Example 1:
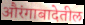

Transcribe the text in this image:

औरंगाबादेतील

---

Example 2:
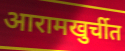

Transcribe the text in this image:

आरामखुर्चीत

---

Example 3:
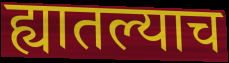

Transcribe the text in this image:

ह्यातल्याच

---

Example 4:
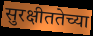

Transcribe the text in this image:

सुरक्षीततेच्या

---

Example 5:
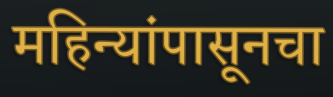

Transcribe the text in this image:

महिन्यांपासूनचा